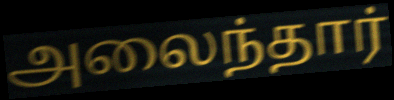
அலைந்தார்